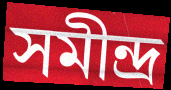
সমীন্দ্ৰ